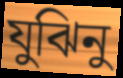
যুঝিনু